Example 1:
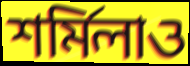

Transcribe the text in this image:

শর্মিলাও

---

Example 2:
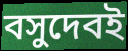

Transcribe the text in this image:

বসুদেবই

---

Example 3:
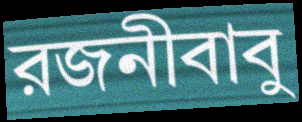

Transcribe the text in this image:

রজনীবাবু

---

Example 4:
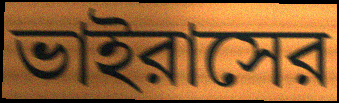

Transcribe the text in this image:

ভাইরাসের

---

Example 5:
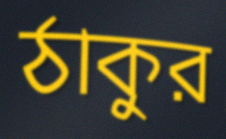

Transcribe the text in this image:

ঠাকুর